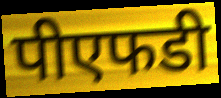
पीएफडी